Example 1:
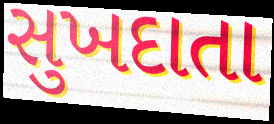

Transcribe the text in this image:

સુખદાતા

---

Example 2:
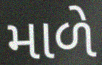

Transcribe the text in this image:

માળે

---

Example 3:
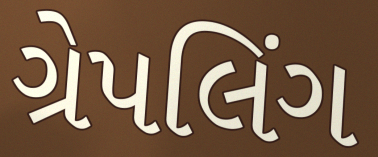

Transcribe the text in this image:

ગ્રેપલિંગ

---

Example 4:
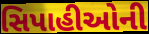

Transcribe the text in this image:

સિપાહીઓની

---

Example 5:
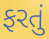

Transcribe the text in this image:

ફરતું